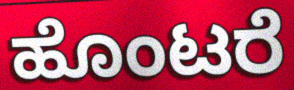
ಹೊಂಟರೆ